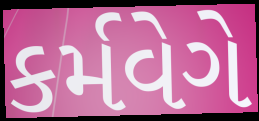
કર્મવેગે